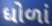
ધોળાં